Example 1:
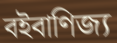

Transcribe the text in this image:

বইবাণিজ্য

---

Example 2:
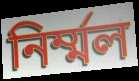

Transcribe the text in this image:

নির্ম্মল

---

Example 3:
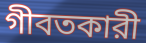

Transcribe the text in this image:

গীবতকারী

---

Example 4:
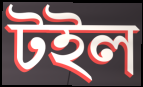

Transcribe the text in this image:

টইল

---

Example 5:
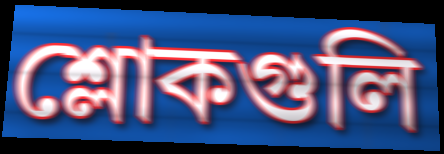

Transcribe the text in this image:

শ্লোকগুলি